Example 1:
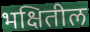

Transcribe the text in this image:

भक्षितील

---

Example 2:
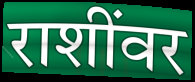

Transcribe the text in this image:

राशींवर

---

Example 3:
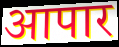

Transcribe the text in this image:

आपार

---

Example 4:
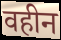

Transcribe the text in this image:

वहीन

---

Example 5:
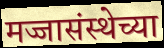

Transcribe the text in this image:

मज्जासंस्थेच्या